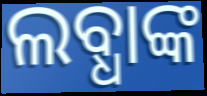
ଲବ୍ଧାଙ୍କ